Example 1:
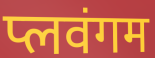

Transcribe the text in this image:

प्लवंगम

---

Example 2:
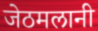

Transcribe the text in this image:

जेठमलानी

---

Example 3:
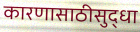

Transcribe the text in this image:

कारणासाठीसुद्धा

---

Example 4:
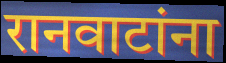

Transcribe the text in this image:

रानवाटांना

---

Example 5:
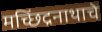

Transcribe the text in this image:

मच्छिंद्रनाथाचे